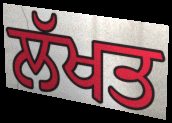
ਲੱਖਤ